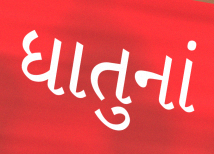
ધાતુનાં